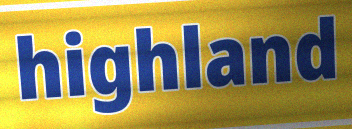
highland